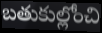
బతుకుల్లోంచి